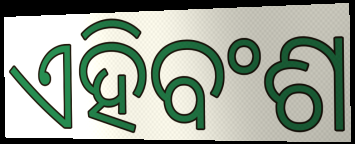
ଏହିବଂଶ